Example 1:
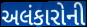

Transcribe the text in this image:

અલંકારોની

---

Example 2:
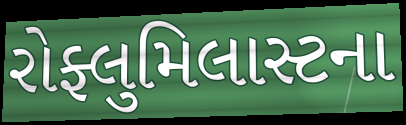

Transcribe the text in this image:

રોફ્લુમિલાસ્ટના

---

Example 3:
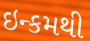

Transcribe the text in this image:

ઇન્કમથી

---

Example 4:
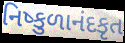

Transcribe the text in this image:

નિષ્કુળાનંદકૃત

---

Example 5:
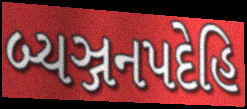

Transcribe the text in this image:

બ્યઞ્જનપદેહિ